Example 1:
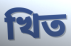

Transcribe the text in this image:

খিত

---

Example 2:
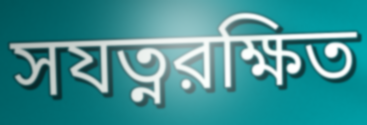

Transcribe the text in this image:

সযত্নরক্ষিত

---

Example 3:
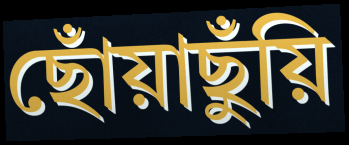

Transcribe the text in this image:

ছোঁয়াছুঁয়ি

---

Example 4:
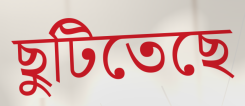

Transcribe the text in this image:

ছুটিতেছে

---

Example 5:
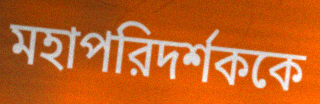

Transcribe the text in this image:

মহাপরিদর্শককে